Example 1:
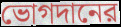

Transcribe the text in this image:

ভোগদানের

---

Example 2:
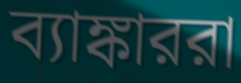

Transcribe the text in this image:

ব্যাঙ্কাররা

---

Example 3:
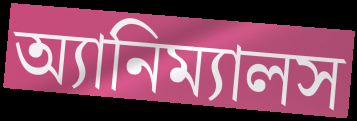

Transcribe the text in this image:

অ্যানিম্যালস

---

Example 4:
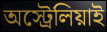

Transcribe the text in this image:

অস্ট্রেলিয়াই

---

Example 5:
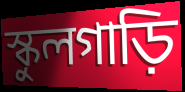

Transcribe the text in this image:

স্কুলগাড়ি